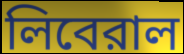
লিবেরাল